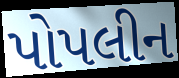
પોપલીન